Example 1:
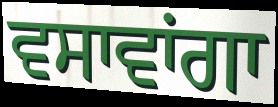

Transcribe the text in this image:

ਵਸਾਵਾਂਗਾ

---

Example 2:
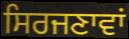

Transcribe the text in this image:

ਸਿਰਜਣਾਵਾਂ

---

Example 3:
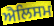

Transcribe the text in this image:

ਐਲਿਸਮ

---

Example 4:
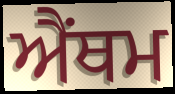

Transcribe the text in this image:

ਐਂਥਮ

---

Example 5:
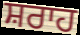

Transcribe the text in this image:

ਸ਼ਰਾਹ